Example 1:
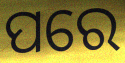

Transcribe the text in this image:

ପରେ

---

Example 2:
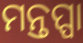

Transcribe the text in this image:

ମନ୍ତପ୍ପା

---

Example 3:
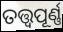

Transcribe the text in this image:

ତତ୍ତ୍ୱପୂର୍ଣ୍ଣ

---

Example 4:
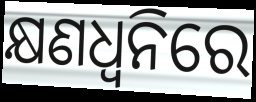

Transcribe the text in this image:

କ୍ଷଣଧ୍ୱନିରେ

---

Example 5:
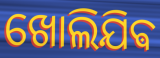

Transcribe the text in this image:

ଖୋଲିଯିଵ